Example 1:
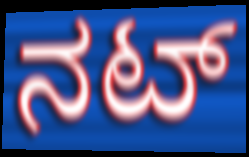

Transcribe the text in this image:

ನಟ್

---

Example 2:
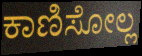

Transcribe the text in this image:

ಕಾಣಿಸೋಲ್ಲ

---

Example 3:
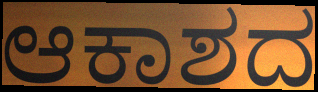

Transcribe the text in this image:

ಆಕಾಶದ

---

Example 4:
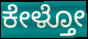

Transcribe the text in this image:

ಕೇಳ್ತೋ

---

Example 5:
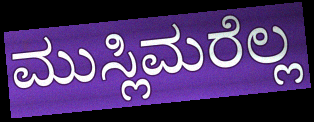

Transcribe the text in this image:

ಮುಸ್ಲಿಮರೆಲ್ಲ